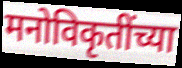
मनोविकृतींच्या